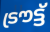
ട്രൗട്ട്